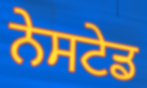
ਨੇਸਟੇਡ